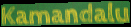
Kamandalu